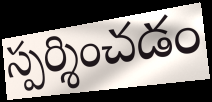
స్పర్శించడం